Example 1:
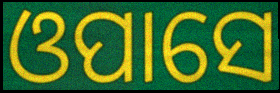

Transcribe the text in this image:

ଓପାସେ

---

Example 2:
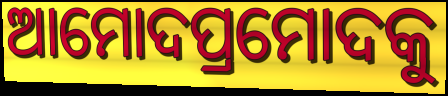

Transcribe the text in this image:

ଆମୋଦପ୍ରମୋଦକୁ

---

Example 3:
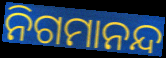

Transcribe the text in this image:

ନିଗମାନନ୍ଦ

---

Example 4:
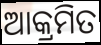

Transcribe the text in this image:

ଆକ୍ରମିତ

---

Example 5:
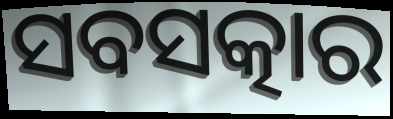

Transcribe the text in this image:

ସବସତ୍କାର